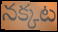
నక్కట